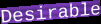
Desirable